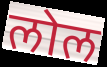
लोल